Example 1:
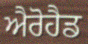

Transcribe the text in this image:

ਐਰੋਹੈਡ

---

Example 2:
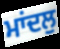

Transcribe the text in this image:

ਮਾਂਦਲੁ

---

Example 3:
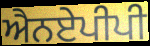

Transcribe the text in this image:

ਐਨਏਪੀਪੀ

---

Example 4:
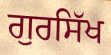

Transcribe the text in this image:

ਗੁਰਸਿੱਖ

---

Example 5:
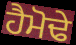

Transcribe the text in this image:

ਹੈਮੋਢੇ